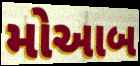
મોઆબ